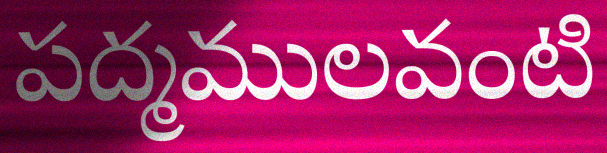
పద్మములవంటి